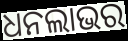
ଧନଲାଭର